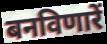
बनविणारें